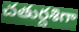
చతుర్దశిగా